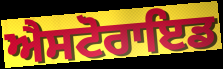
ਐਸਟੋਰਾਇਡ